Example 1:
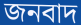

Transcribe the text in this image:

জনবাদ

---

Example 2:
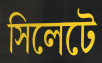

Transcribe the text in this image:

সিলেটে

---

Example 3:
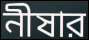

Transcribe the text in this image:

নীষার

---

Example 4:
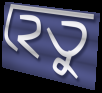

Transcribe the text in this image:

হেতু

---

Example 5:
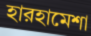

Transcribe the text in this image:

হারহামেশা